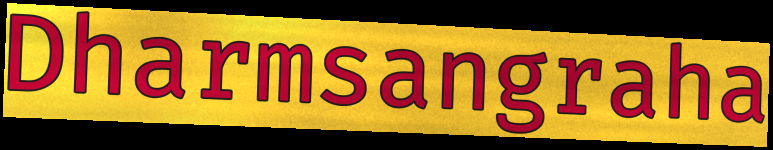
Dharmsangraha